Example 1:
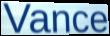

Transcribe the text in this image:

Vance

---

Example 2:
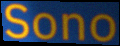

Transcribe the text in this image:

Sono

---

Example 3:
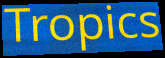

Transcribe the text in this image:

Tropics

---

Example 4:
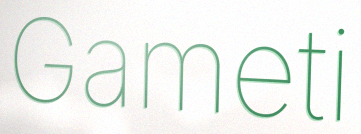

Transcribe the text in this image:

Gameti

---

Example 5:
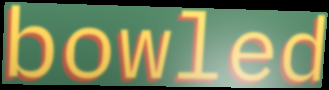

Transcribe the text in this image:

bowled